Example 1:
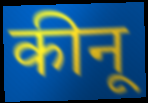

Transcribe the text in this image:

कीनू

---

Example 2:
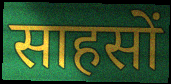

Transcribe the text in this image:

साहसों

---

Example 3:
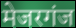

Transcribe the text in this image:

मेजरगंज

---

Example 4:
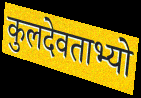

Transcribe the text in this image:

कुलदेवताभ्यो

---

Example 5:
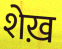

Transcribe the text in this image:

शेख़